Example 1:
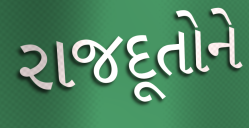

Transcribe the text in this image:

રાજદૂતોને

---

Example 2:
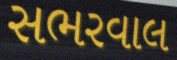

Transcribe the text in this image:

સભરવાલ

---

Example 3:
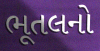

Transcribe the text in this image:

ભૂતલનો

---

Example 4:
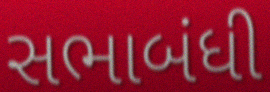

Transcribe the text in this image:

સભાબંધી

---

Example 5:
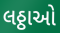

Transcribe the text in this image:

લઠ્ઠાઓ